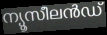
ന്യൂസീലൻഡ്